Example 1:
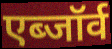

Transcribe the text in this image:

एब्जॉर्व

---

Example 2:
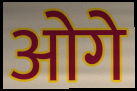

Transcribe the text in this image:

ओगे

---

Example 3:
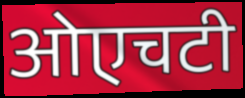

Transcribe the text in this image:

ओएचटी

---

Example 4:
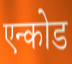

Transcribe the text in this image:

एन्कोड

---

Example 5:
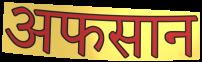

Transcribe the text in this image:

अफसान